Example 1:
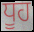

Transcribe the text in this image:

ਧੂਹ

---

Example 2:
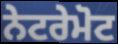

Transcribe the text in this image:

ਨੇਟਰੇਮੋਟ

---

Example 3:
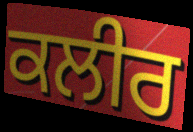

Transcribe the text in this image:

ਕਲੀਰ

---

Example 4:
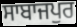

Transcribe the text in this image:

ਸਾਬਾਜਪੁਰ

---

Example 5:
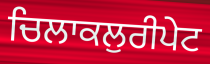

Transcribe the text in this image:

ਚਿਲਾਕਲੁਰੀਪੇਟ